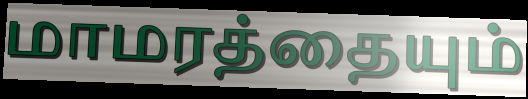
மாமரத்தையும்